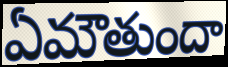
ఏమౌతుందా